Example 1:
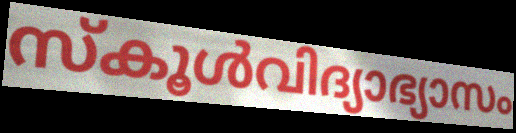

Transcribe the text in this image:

സ്കൂൾവിദ്യാഭ്യാസം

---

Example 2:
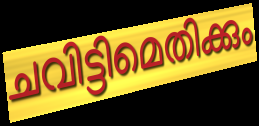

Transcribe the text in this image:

ചവിട്ടിമെതിക്കും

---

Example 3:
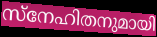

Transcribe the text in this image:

സ്നേഹിതനുമായി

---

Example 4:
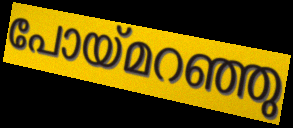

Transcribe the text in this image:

പോയ്മറഞ്ഞു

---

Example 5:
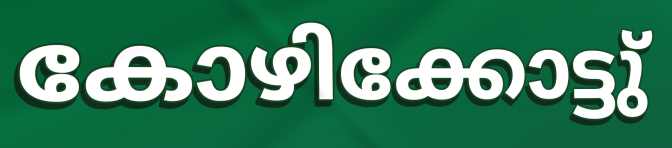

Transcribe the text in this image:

കോഴിക്കോട്ടു്